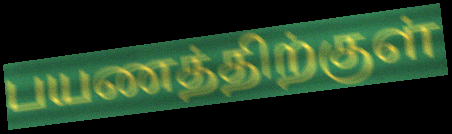
பயணத்திற்குள்